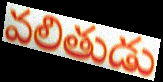
వలితుడు